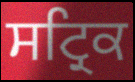
ਸਟ੍ਰਿਕ